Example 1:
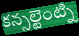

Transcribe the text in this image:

కన్సల్టెంట్ని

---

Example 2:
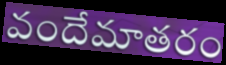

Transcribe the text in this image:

వందేమాతరం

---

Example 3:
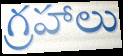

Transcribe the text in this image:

గ్రహాలు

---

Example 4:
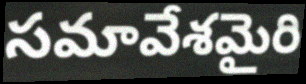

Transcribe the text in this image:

సమావేశమైరి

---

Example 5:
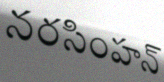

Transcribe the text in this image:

నరసింహన్